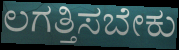
ಲಗತ್ತಿಸಬೇಕು